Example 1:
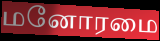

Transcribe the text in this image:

மனோரமை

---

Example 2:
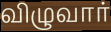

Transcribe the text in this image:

விழுவார்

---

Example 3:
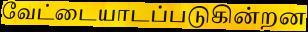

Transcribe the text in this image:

வேட்டையாடப்படுகின்றன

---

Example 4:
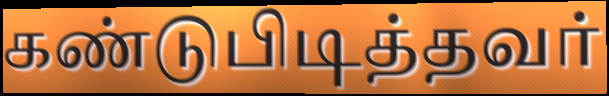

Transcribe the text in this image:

கண்டுபிடித்தவர்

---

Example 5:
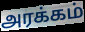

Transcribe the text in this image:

அரக்கம்